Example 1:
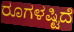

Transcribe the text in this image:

ರೂಗಳಷ್ಟಿದೆ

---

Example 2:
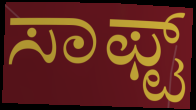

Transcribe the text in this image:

ಸಾಫ್ಟ್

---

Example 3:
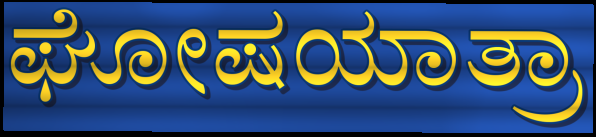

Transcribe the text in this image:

ಘೋಷಯಾತ್ರಾ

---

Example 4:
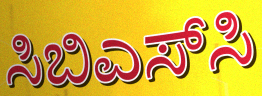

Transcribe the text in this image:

ಸಿಬಿಎಸ್‌ಸಿ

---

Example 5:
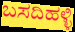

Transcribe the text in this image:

ಬಸದಿಹಳ್ಳಿ